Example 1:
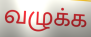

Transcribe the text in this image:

வழுக்க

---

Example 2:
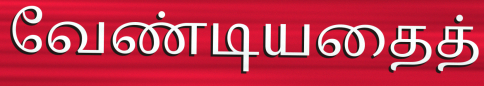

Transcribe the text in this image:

வேண்டியதைத்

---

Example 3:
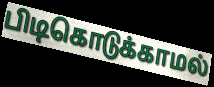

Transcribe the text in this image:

பிடிகொடுக்காமல்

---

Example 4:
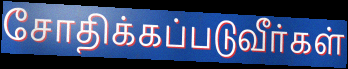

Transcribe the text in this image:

சோதிக்கப்படுவீர்கள்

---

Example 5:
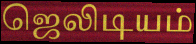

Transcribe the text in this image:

ஜெலிடியம்